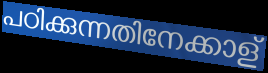
പഠിക്കുന്നതിനേക്കാള്